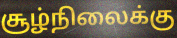
சூழ்நிலைக்கு